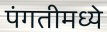
पंगतीमध्ये